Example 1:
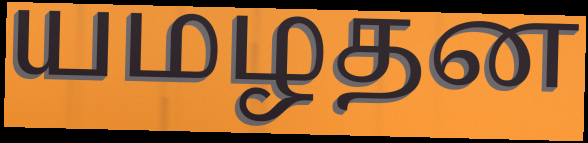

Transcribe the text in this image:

யமழதன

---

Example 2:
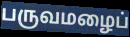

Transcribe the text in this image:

பருவமழைப்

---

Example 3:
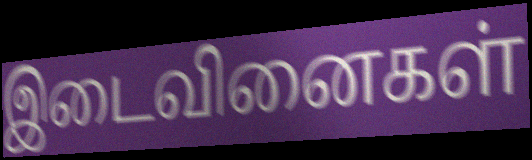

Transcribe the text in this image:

இடைவினைகள்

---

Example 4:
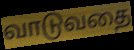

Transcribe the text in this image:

வாடுவதை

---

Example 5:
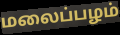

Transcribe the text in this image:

மலைப்பழம்